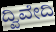
ದ್ವಿವೇದಿ